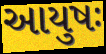
આયુષઃ